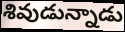
శివుడున్నాడు